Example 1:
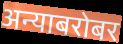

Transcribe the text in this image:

अन्याबरोबर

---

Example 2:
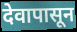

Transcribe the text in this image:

देवापासून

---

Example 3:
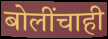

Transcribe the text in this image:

बोलींचाही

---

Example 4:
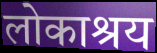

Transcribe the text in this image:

लोकाश्रय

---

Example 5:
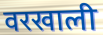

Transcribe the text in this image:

वरखाली